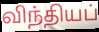
விந்தியப்